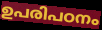
ഉപരിപഠനം